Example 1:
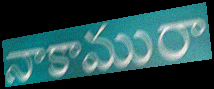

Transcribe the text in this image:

నాకామురా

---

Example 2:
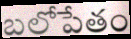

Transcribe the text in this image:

బలోపేతం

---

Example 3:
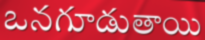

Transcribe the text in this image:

ఒనగూడుతాయి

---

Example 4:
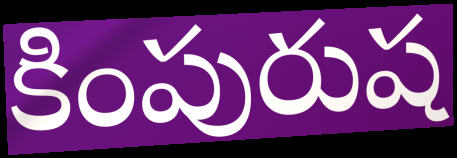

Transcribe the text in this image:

కింపురుష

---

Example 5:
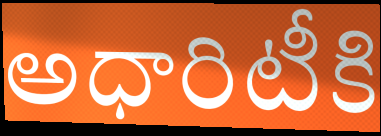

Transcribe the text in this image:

అధారిటీకి